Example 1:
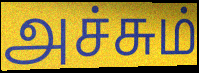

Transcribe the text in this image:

அச்சும்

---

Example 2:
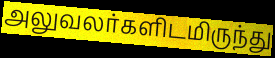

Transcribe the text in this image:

அலுவலர்களிடமிருந்து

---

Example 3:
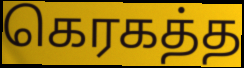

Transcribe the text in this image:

கெரகத்த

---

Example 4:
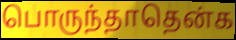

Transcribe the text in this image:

பொருந்தாதென்க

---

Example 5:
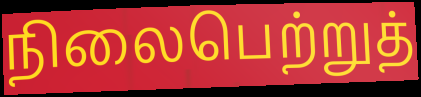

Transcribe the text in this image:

நிலைபெற்றுத்